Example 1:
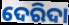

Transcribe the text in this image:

ଦେରିଦା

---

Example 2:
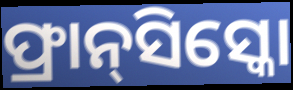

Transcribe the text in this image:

ଫ୍ରାନ୍‌ସିସ୍କୋ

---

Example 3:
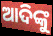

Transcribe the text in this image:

ଆଦିଙ୍କୁ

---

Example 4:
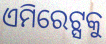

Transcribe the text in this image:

ଏମିରେଟ୍ସକୁ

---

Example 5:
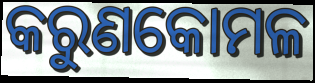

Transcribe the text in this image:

କରୁଣକୋମଳ